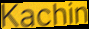
Kachin